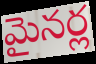
మైనర్ల